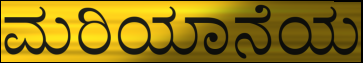
ಮರಿಯಾನೆಯ